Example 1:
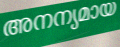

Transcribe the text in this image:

അനന്യമായ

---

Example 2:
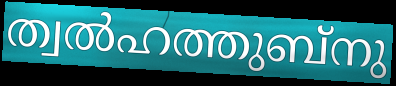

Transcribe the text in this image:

ത്വൽഹത്തുബ്നു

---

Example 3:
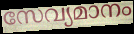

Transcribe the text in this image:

സേവ്യമാനം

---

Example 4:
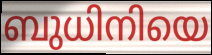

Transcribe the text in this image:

ബുധിനിയെ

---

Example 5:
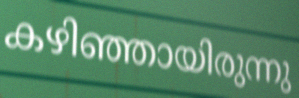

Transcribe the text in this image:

കഴിഞ്ഞായിരുന്നു